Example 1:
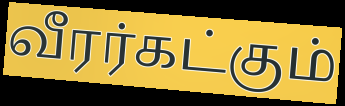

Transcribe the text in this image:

வீரர்கட்கும்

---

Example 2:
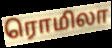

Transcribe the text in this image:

ரொமிலா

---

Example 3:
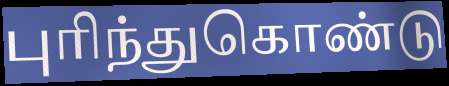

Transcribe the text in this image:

புரிந்துகொண்டு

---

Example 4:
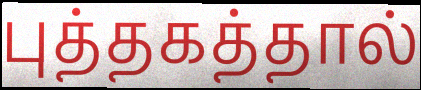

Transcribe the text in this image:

புத்தகத்தால்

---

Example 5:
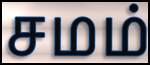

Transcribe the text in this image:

சமம்